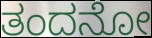
ತಂದನೋ